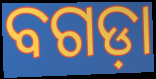
ବଗଡ଼ା